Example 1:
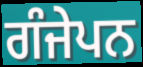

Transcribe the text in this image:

ਗੰਜੇਪਨ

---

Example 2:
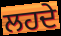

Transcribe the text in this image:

ਲਹਦੇ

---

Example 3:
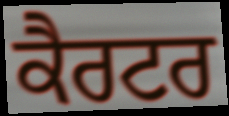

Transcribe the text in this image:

ਕੈਰਟਰ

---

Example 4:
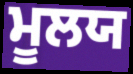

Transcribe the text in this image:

ਮੂਲਯ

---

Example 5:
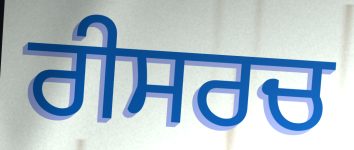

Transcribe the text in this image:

ਰੀਸਰਚ